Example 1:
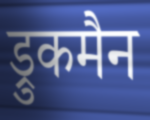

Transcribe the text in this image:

ड्रुकमैन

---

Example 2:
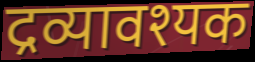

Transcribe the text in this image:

द्रव्यावश्यक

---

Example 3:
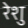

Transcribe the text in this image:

रेशु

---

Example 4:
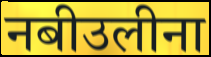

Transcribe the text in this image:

नबीउलीना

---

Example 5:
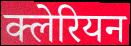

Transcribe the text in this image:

क्लेरियन